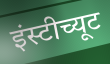
इंस्‍टीच्‍यूट